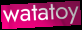
watatoy